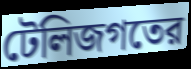
টেলিজগতের